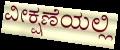
ವೀಕ್ಷಣೆಯಲ್ಲಿ